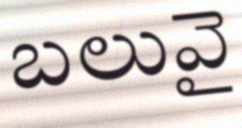
బలువై